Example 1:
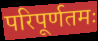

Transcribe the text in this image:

परिपूर्णतमः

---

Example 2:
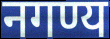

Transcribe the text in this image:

नगण्य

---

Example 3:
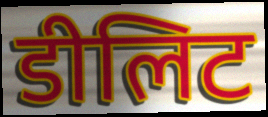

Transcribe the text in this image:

डीलिट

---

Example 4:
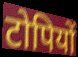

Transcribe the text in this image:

टोपियों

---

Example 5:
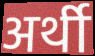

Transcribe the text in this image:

अर्थी